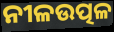
ନୀଳଉତ୍ପଳ